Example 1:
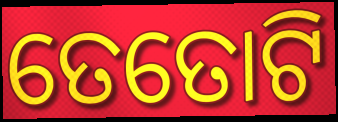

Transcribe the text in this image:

ତେତୋଟି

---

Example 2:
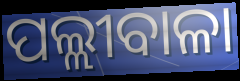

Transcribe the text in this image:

ପଲ୍ଲୀବାଳା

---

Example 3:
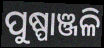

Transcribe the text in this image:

ପୁଷ୍ପାଞ୍ଜଳି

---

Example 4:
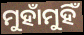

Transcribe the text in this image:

ମୁହାଁମୁହିଁ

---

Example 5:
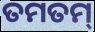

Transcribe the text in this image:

ତମତମ୍